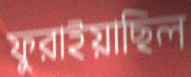
ফুরাইয়াছিল